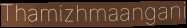
Thamizhmaangani